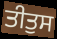
ਤੀਤੁਸ